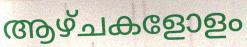
ആഴ്ചകളോളം